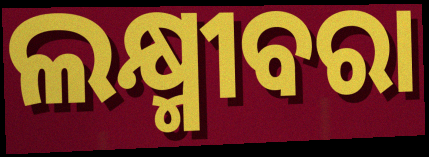
ଲକ୍ଷ୍ମୀବରା